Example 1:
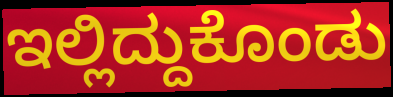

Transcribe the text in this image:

ಇಲ್ಲಿದ್ದುಕೊಂಡು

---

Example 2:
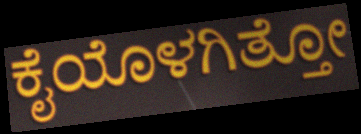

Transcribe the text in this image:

ಕೈಯೊಳಗಿತ್ತೋ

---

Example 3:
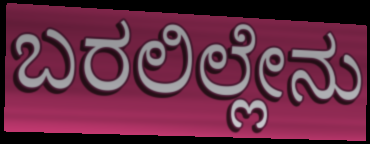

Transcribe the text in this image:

ಬರಲಿಲ್ಲೇನು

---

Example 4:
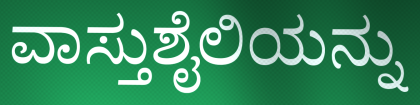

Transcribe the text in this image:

ವಾಸ್ತುಶೈಲಿಯನ್ನು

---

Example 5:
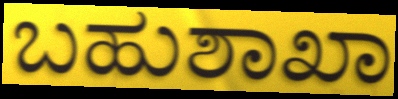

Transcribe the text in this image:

ಬಹುಶಾಖಾ